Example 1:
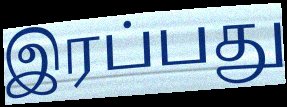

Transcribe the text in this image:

இரப்பது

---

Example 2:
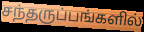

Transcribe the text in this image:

சந்தருப்பங்களில்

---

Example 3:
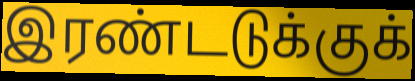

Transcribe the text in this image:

இரண்டடுக்குக்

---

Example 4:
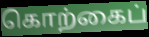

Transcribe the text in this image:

கொற்கைப்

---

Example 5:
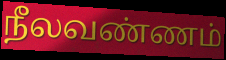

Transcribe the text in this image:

நீலவண்ணம்